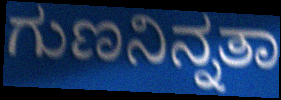
ಗುಣನಿನ್ನತಾ